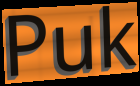
Puk